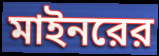
মাইনরের